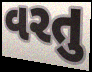
વરતુ